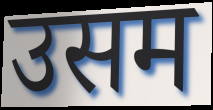
उसम